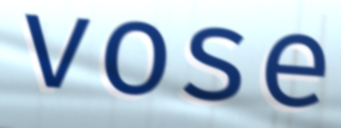
vose